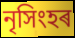
নৃসিংহৰ